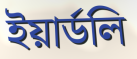
ইয়ার্ডলি